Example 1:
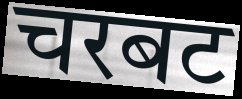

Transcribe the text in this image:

चरबट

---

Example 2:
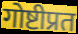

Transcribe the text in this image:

गोष्टीप्रत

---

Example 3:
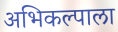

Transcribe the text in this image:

अभिकल्पाला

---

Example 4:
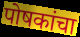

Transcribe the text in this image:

पोषकांचा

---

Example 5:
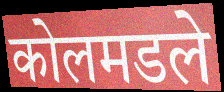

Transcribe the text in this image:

कोलमडले